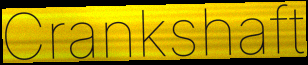
Crankshaft